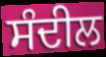
ਸੰਦੀਲ